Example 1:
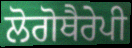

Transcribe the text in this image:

ਲੋਗੋਥੈਰੇਪੀ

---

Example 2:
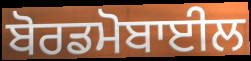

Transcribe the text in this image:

ਬੋਰਡਮੋਬਾਈਲ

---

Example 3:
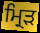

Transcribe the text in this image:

ਮ੍ਰਿੜ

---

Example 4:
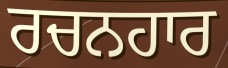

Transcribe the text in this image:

ਰਚਨਹਾਰ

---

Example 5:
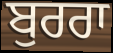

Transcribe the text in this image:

ਬੁਰਰਾ